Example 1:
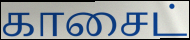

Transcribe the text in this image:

காசைட்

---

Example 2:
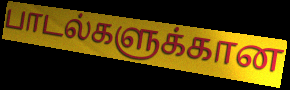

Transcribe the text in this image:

பாடல்களுக்கான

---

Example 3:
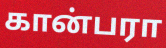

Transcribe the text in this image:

கான்பரா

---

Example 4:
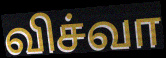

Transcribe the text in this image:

விச்வா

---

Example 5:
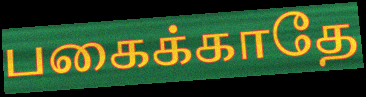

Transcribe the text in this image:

பகைக்காதே